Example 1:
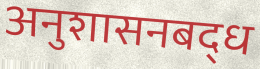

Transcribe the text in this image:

अनुशासनबद्ध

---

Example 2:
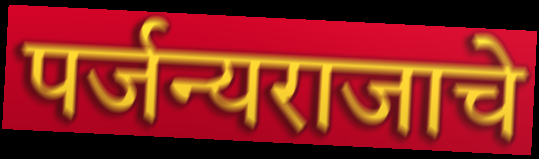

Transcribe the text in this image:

पर्जन्यराजाचे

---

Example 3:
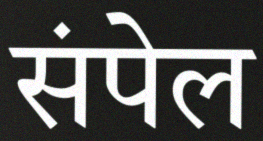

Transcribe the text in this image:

संपेल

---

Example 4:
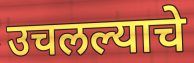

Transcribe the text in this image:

उचलल्याचे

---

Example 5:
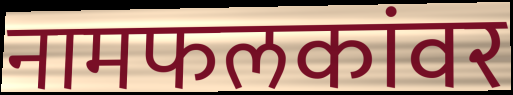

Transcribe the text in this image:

नामफलकांवर